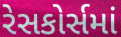
રેસકોર્સમાં